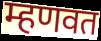
म्हणवत